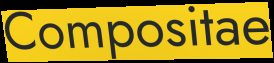
Compositae